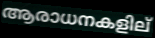
ആരാധനകളില്